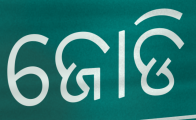
ଜୋଡି